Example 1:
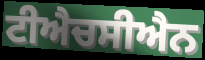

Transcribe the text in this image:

ਟੀਐਚਸੀਐਨ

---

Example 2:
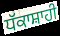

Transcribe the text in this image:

ਧੱਕਾਸ਼ਾਹੀ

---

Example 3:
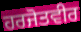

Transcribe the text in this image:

ਹਰਜੋਤਵੀਰ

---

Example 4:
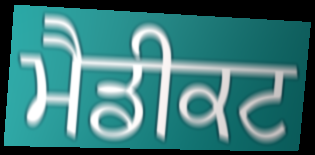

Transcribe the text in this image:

ਮੈਡੀਕਟ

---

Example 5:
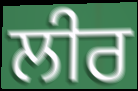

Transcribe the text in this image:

ਲੀਰ